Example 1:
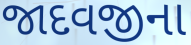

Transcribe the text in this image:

જાદવજીના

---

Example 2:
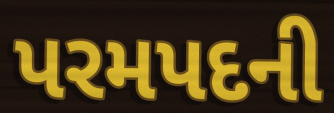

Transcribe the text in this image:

પરમપદની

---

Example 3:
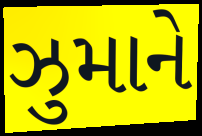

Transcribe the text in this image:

ઝુમાને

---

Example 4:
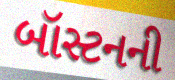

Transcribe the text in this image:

બૉસ્ટનની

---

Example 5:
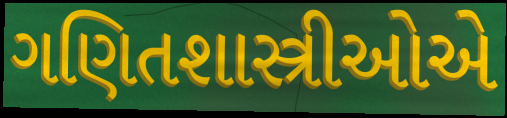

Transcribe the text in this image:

ગણિતશાસ્ત્રીઓએ